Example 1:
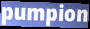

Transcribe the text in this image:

pumpion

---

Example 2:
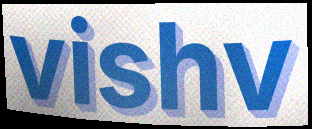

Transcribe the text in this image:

vishv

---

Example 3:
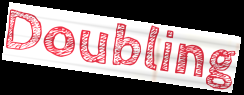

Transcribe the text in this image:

Doubling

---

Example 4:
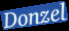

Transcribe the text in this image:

Donzel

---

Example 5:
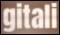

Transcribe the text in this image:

gitali